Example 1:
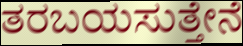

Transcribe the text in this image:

ತರಬಯಸುತ್ತೇನೆ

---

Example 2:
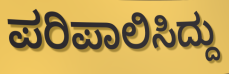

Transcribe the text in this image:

ಪರಿಪಾಲಿಸಿದ್ದು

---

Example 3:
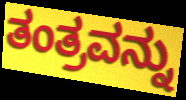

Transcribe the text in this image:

ತಂತ್ರವನ್ನು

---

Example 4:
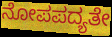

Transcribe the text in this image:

ನೋಪಪದ್ಯತೇ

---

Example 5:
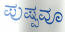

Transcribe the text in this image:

ಪುಷ್ಪವೂ